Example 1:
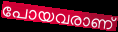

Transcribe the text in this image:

പോയവരാണ്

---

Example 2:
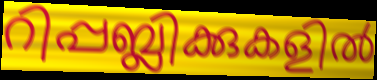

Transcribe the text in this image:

റിപ്പബ്ലിക്കുകളിൽ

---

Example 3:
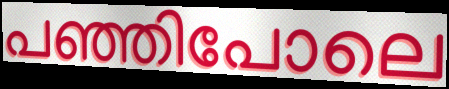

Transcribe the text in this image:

പഞ്ഞിപോലെ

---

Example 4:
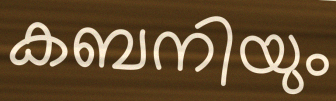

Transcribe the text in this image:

കബനിയും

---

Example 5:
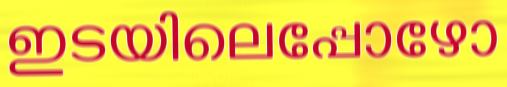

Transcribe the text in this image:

ഇടയിലെപ്പോഴോ